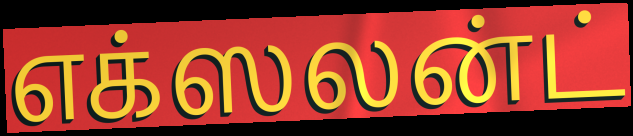
எக்ஸலன்ட்